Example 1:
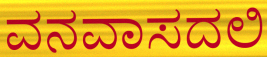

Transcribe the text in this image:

ವನವಾಸದಲಿ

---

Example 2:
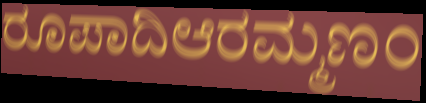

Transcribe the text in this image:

ರೂಪಾದಿಆರಮ್ಮಣಂ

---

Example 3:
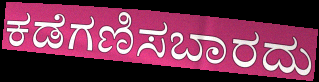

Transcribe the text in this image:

ಕಡೆಗಣಿಸಬಾರದು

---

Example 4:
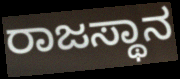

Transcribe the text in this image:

ರಾಜಸ್ಥಾನ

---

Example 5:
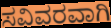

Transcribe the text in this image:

ಸವಿವರವಾಗಿ